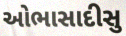
ઓભાસાદીસુ